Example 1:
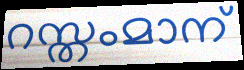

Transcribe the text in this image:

റസ്തംമാന്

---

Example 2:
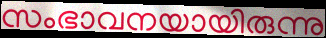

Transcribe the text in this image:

സംഭാവനയായിരുന്നു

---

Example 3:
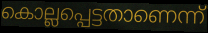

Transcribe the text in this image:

കൊല്ലപ്പെട്ടതാണെന്ന്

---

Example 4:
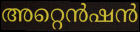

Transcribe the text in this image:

അറ്റെൻഷൻ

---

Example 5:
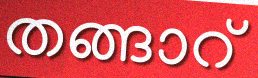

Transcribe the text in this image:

തങ്ങാറ്